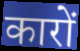
कारों